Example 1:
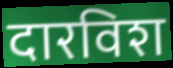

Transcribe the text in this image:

दारविश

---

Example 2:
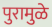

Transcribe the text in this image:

पुरामुळे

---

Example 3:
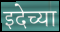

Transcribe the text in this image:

इदेच्या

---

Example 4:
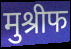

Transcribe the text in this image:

मुश्रीफ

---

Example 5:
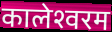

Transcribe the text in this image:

कालेश्वरम